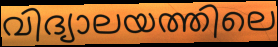
വിദ്യാലയത്തിലെ